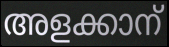
അളക്കാന്